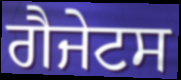
ਗੈਜੇਟਸ